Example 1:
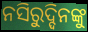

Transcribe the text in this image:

ନସିରୁଦ୍ଦିନଙ୍କୁ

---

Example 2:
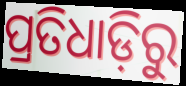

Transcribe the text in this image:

ପ୍ରତିଧାଡ଼ିରୁ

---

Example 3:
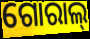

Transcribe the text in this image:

ଗୋରାଲ୍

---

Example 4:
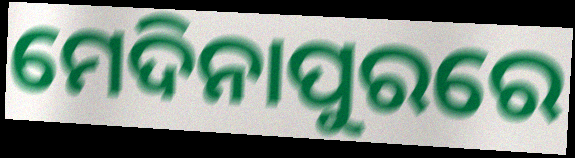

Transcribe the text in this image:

ମେଦିନାପୁରରେ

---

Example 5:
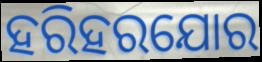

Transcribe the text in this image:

ହରିହରଯୋର